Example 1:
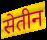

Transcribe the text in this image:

सेतीन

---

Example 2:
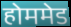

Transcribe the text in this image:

होममेड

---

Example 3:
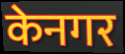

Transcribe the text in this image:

केनगर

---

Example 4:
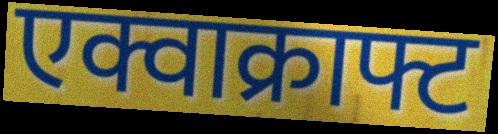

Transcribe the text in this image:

एक्वाक्राफ्ट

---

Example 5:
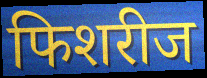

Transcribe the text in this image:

फिशरीज